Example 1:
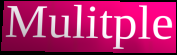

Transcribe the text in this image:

Mulitple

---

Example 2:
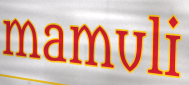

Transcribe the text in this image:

mamuli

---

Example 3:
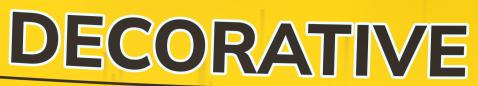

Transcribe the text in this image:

DECORATIVE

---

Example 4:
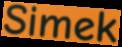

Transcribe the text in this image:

Simek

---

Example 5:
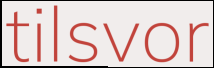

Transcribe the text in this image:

tilsvor